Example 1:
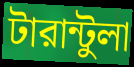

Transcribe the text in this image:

টারান্টুলা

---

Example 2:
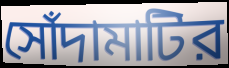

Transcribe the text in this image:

সোঁদামাটির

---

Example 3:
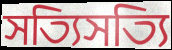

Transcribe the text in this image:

সত্যিসত্যি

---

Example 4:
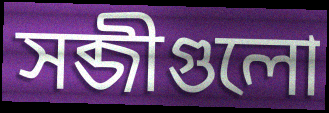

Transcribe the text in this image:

সব্জীগুলো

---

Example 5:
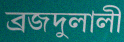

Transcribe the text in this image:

ব্রজদুলালী